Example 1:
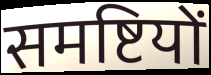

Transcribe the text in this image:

समष्टियों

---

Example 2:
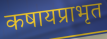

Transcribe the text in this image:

कषायप्राभृत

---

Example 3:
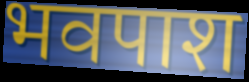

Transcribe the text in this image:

भवपाश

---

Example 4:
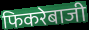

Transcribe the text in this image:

फिकरेबाजी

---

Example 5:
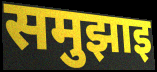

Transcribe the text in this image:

समुझाइ